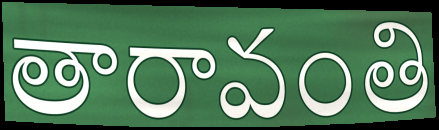
తారావంతి